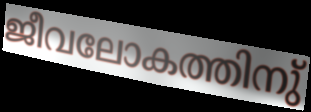
ജീവലോകത്തിനു്